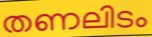
തണലിടം